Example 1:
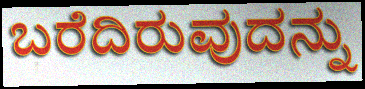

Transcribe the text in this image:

ಬರೆದಿರುವುದನ್ನು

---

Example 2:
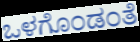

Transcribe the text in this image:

ಒಳಗೊಂಡಂತೆ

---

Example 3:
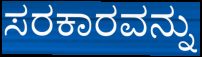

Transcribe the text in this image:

ಸರಕಾರವನ್ನು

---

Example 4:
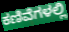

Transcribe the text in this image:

ಕಣಿವೆಗಳಲ್ಲಿ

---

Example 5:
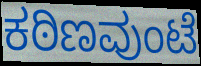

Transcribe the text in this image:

ಕಠಿಣವುಂಟೆ